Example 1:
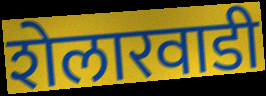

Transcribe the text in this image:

शेलारवाडी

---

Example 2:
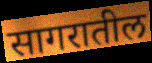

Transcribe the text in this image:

सागरातील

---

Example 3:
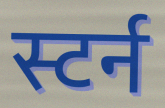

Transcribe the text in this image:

स्टर्न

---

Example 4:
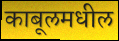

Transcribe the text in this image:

काबूलमधील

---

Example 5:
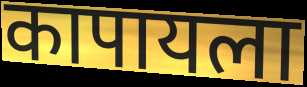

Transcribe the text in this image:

कापायला